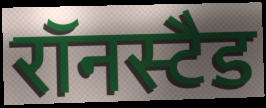
रॉनस्टैड